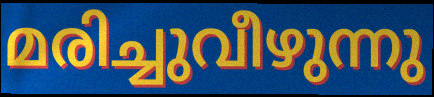
മരിച്ചുവീഴുന്നു